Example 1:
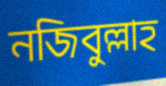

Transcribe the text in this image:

নজিবুল্লাহ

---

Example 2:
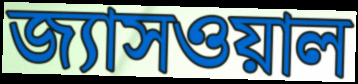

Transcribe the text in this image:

জ্যাসওয়াল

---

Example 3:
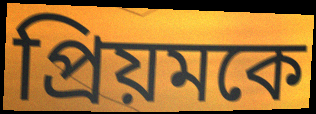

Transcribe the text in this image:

প্রিয়মকে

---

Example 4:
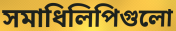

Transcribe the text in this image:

সমাধিলিপিগুলো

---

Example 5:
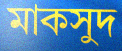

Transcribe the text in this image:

মাকসুদ